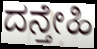
ದನ್ತೇಹಿ